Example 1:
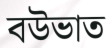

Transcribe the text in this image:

বউভাত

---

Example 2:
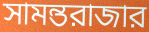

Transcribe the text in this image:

সামন্তরাজার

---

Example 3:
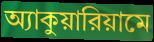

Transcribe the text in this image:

অ্যাকুয়ারিয়ামে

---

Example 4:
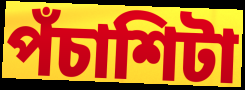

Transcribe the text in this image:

পঁচাশিটা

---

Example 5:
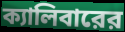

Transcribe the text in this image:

ক্যালিবারের